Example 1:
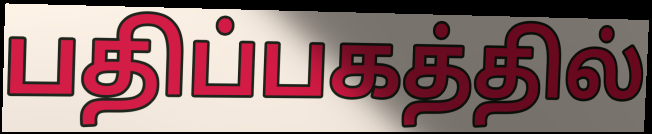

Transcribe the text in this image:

பதிப்பகத்தில்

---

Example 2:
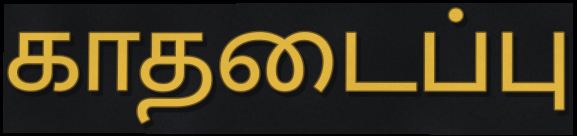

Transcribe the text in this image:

காதடைப்பு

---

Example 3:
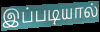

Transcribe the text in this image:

இப்படியால்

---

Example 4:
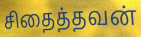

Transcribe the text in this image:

சிதைத்தவன்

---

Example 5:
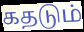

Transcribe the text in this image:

கதடும்